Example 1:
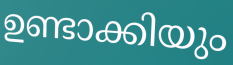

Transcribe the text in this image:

ഉണ്ടാക്കിയും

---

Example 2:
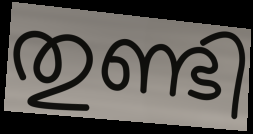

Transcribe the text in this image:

തുണ്ടി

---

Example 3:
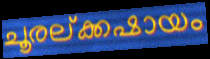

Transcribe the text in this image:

ചൂരല്ക്കഷായം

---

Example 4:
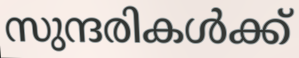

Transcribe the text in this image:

സുന്ദരികൾക്ക്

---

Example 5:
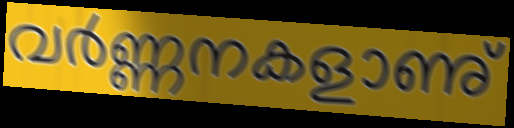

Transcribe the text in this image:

വർണ്ണനകളാണു്